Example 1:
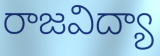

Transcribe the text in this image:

రాజవిద్యా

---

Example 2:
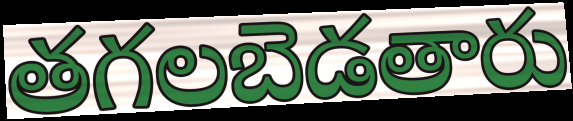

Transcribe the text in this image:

తగలబెడతారు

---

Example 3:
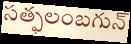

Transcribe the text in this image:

సత్ఫలంబగున్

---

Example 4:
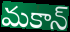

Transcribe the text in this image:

మకాన్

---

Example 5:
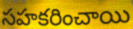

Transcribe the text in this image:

సహకరించాయి